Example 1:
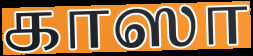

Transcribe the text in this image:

காஸா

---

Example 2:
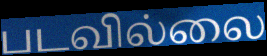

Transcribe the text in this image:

படவில்லை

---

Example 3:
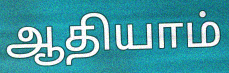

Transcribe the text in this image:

ஆதியாம்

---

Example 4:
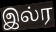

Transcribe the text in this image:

இல்ர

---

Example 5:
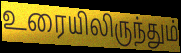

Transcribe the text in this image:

உரையிலிருந்தும்